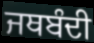
ਜਥਬੰਦੀ